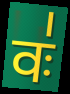
वः॑